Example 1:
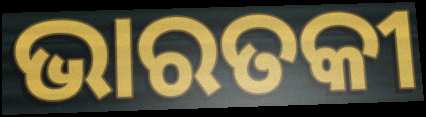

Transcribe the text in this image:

ଭାରତକୀ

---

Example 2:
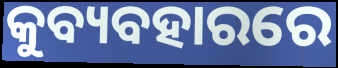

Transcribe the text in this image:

କୁବ୍ୟବହାରରେ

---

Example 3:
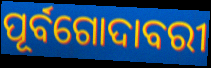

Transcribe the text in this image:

ପୂର୍ବଗୋଦାବରୀ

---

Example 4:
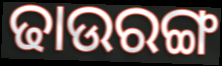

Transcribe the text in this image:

ଢାଉରଙ୍ଗ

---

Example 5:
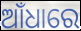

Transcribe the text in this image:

ଆଁଧାରେ